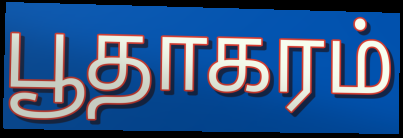
பூதாகரம்